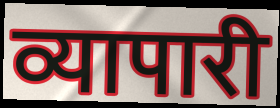
व्यापारी